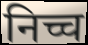
निच्च